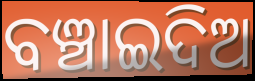
ବଞ୍ଚାଇଦିଅ